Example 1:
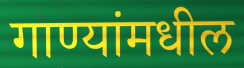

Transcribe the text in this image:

गाण्यांमधील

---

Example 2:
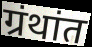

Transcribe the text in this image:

ग्रंथांत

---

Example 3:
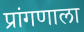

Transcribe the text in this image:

प्रांगणाला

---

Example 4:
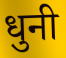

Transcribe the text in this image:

धुनी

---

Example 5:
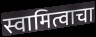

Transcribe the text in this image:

स्वामित्वाचा